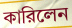
কারিলেন